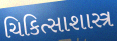
ચિકિત્સાશાસ્ત્ર